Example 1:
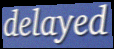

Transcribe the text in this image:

delayed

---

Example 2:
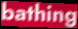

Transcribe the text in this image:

bathing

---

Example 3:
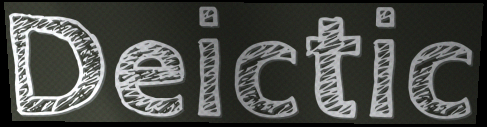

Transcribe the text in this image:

Deictic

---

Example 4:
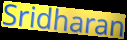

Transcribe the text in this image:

Sridharan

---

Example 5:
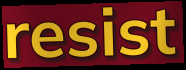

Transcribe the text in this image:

resist